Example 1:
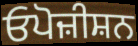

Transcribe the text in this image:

ਓਪੋਜ਼ੀਸ਼ਨ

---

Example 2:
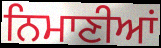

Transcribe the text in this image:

ਨਿਮਾਣੀਆਂ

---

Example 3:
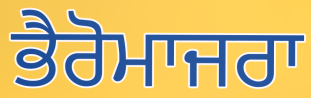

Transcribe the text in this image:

ਭੈਰੋਮਾਜਰਾ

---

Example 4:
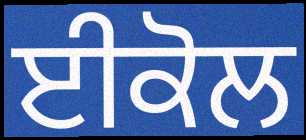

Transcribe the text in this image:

ਈਕੋਲ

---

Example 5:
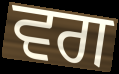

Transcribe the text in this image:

ਵਗ